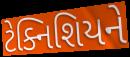
ટેક્નિશિયને